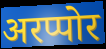
अरप्पोर